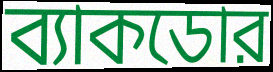
ব্যাকডোর